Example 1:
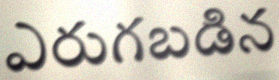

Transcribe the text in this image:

ఎరుగబడిన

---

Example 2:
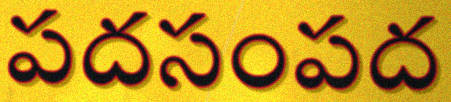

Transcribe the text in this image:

పదసంపద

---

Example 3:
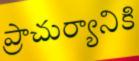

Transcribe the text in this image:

ప్రాచుర్యానికి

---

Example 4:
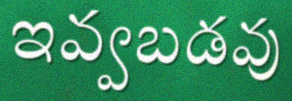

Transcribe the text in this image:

ఇవ్వబడవు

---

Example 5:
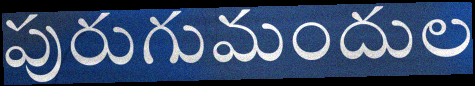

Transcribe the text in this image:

పురుగుమందుల